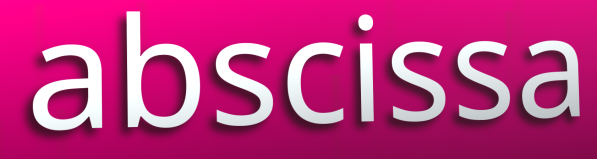
abscissa